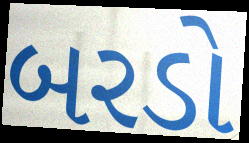
બરડો